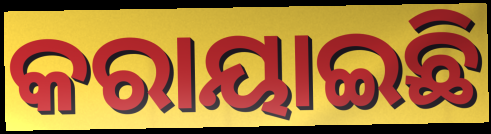
କରାୟାଇଛି